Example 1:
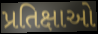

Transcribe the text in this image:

પ્રતિક્ષાઓ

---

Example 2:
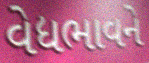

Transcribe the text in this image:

વેદ્યભાવને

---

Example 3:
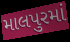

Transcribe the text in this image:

માલપુરમાં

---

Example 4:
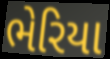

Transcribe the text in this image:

ભેરિયા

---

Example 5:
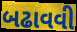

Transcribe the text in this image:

બઢાવવી